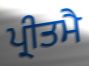
ਪ੍ਰੀਤਮੈ